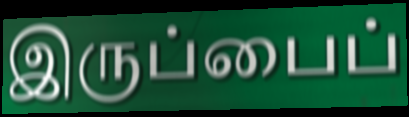
இருப்பைப்